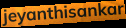
jeyanthisankar